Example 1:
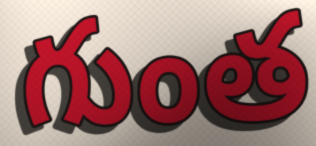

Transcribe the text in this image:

గుంత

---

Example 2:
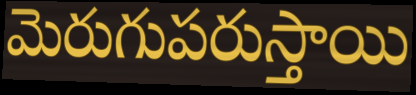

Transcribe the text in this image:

మెరుగుపరుస్తాయి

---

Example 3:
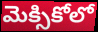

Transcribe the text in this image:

మెక్సికోలో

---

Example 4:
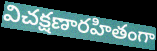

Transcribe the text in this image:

విచక్షణారహితంగా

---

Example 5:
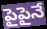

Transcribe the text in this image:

పైపైనే